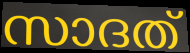
സാദത്